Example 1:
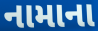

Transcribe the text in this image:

નામાના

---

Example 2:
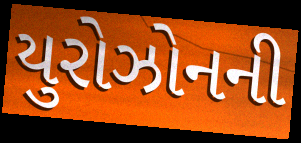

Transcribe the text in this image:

યુરોઝોનની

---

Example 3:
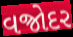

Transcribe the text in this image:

વજ્રોદર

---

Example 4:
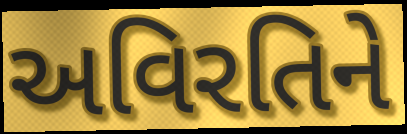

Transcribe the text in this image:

અવિરતિને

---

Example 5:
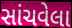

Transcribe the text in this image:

સાંચવેલા